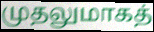
முதலுமாகத்